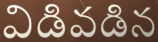
విడివడిన